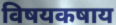
विषयकषाय